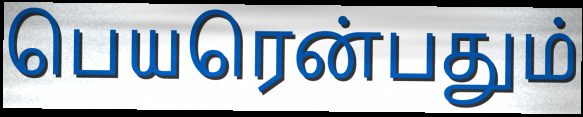
பெயரென்பதும்